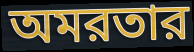
অমরতার